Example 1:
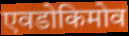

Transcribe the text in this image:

एवडोकिमोव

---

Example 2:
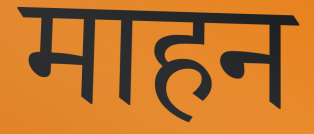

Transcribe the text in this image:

माहन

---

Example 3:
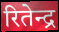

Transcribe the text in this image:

रितेन्द्र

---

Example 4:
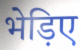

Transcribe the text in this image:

भेड़िए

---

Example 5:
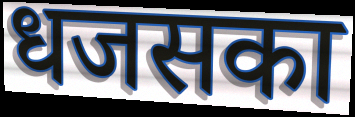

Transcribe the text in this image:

धजसका